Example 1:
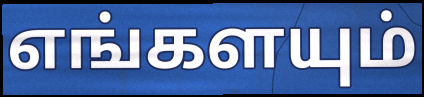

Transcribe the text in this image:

எங்களயும்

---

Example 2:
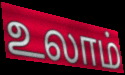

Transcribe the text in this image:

உலாம்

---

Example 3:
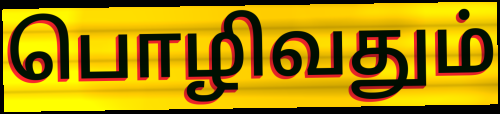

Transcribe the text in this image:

பொழிவதும்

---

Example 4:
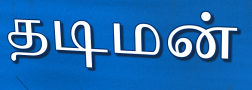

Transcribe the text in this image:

தடிமன்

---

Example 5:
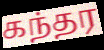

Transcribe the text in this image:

கந்தர